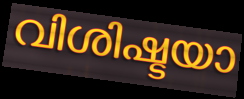
വിശിഷ്ടയാ